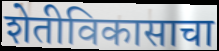
शेतीविकासाचा